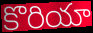
కొరియా